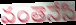
వంతెనేసి